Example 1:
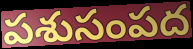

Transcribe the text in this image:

పశుసంపద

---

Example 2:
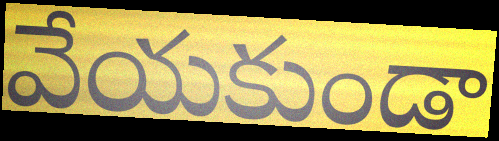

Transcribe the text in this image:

వేయకుండా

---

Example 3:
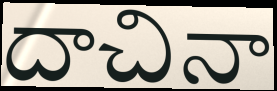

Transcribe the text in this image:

దాచినా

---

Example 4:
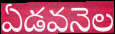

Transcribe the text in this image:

ఏడవనెల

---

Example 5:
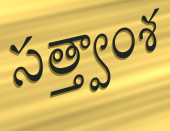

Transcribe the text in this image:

సత్త్వాంశ